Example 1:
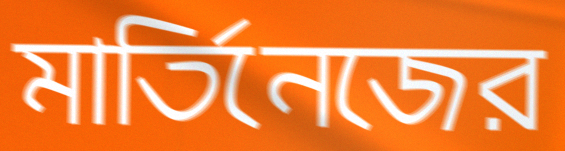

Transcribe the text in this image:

মার্তিনেজের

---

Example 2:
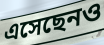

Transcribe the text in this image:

এসেছেনও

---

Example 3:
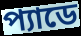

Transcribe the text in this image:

প্যাডে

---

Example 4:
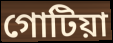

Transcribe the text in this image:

গোটিয়া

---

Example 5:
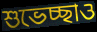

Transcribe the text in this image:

শুভেচ্ছাও